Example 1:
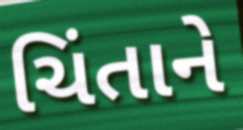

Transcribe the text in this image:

ચિંતાને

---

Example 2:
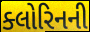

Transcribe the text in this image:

ક્લોરિનની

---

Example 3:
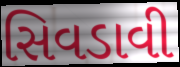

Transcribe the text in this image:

સિવડાવી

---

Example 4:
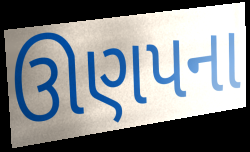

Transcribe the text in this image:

ઊણપના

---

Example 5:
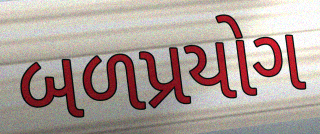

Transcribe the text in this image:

બળપ્રયોગ